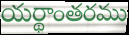
యర్థాంతరము